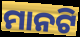
ମାନଟି